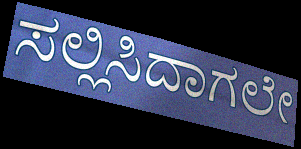
ಸಲ್ಲಿಸಿದಾಗಲೇ